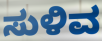
ಸುಳಿವ